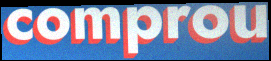
comprou